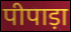
पीपाड़ा